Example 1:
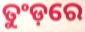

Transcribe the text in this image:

ତୁଂଡ଼ରେ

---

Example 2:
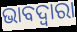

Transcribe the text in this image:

ଭାବଦ୍ଵାରା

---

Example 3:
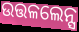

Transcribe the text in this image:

ଉତ୍ତଳଲେନ୍ସ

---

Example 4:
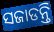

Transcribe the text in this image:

ସଜାଡନ୍ତି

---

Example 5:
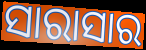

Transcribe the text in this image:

ସାରାସାର